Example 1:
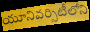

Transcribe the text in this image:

యూనివర్సిటీలోని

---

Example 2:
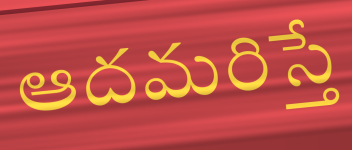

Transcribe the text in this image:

ఆదమరిస్తే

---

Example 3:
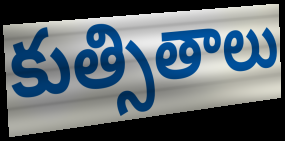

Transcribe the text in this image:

కుత్సితాలు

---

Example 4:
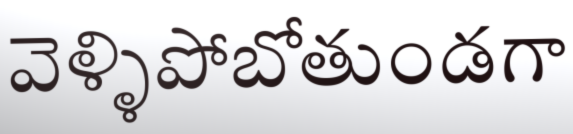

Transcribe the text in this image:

వెళ్ళిపోబోతుండగా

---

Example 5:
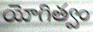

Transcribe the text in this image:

యోగిత్వం